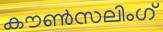
കൗൺസലിംഗ്